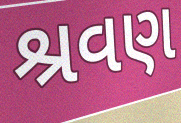
શ્રવણ